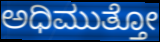
ಅಧಿಮುತ್ತೋ